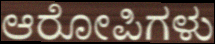
ಆರೋಪಿಗಳು